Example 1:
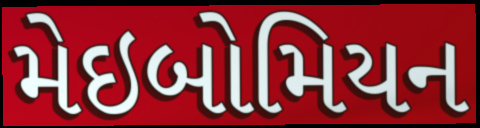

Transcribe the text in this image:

મેઇબોમિયન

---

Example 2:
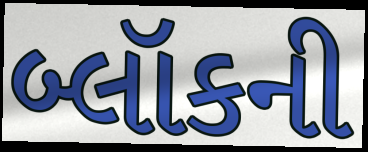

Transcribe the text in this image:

બ્લૉકની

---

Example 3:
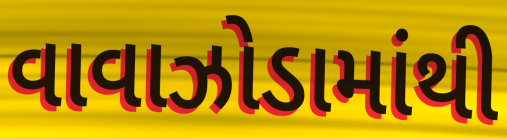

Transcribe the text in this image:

વાવાઝોડામાંથી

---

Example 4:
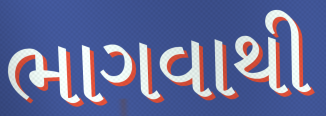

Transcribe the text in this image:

ભાગવાથી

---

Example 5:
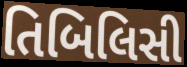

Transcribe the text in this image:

તિબિલિસી